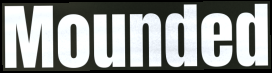
Mounded